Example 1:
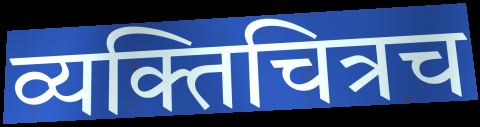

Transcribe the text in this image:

व्यक्तिचित्रच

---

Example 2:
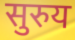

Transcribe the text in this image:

सुरुय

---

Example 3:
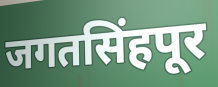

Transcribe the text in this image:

जगतसिंहपूर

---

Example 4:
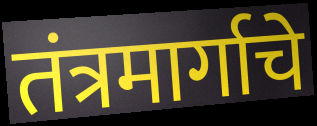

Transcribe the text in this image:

तंत्रमार्गाचे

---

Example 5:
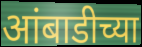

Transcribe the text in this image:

आंबाडीच्या